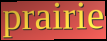
prairie